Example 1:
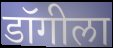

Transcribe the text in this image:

डॉगीला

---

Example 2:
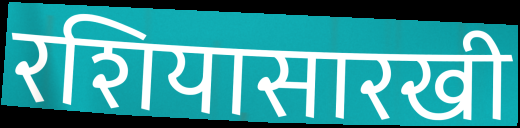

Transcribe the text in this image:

रशियासारखी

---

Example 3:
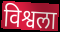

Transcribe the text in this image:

विश्वला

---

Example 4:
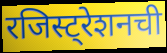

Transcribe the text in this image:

रजिस्ट्रेशनची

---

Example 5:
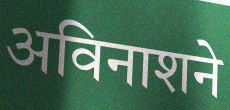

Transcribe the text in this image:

अविनाशने